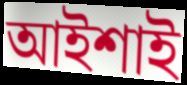
আইশাই